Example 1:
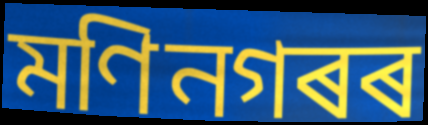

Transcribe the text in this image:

মণিনগৰৰ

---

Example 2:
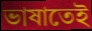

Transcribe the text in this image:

ভাষাতেই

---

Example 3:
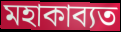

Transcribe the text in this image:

মহাকাব্যত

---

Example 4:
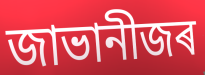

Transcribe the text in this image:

জাভানীজৰ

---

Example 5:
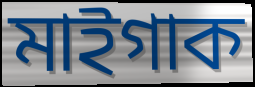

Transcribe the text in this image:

মাইগাক